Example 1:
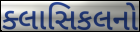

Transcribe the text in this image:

ક્લાસિકલનો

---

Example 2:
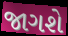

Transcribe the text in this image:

જાગશે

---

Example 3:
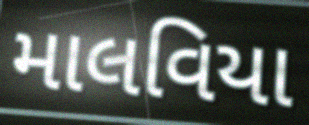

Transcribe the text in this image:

માલવિયા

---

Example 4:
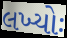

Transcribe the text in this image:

લખ્યોઃ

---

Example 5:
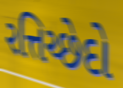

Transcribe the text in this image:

રત્તિચ્છેદો